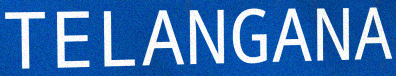
TELANGANA